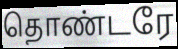
தொண்டரே